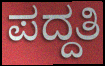
ಪದ್ದತಿ